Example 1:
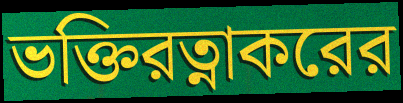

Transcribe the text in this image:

ভক্তিরত্নাকরের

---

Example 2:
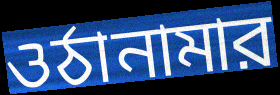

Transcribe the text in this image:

ওঠানামার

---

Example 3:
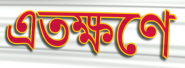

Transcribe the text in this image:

এতক্ষণে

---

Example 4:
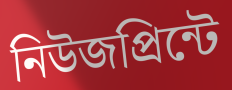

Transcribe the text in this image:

নিউজপ্রিন্টে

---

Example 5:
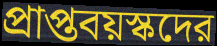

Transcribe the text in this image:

প্রাপ্তবয়স্কদের